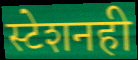
स्टेशनही